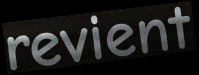
revient